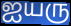
ஐயரு